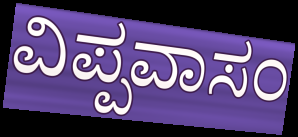
ವಿಪ್ಪವಾಸಂ